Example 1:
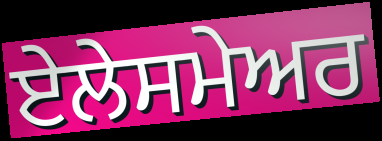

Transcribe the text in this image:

ਏਲੇਸਮੇਅਰ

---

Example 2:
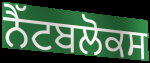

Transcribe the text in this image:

ਨੈੱਟਬਲੋਕਸ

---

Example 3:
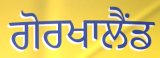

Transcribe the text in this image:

ਗੋਰਖਾਲੈਂਡ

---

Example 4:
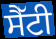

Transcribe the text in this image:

ਸੈੱਟੀ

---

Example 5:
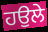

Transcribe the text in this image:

ਹਉਲੇ